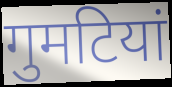
गुमटियां